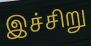
இச்சிறு